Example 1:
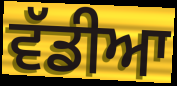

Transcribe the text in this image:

ਵੱਡੀਆ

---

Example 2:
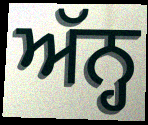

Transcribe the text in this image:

ਅੱਨ੍ਹ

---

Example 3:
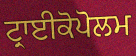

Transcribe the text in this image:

ਟ੍ਰਾਈਕੋਪੋਲਮ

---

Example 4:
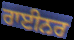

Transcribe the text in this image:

ਰਾਈਨਰ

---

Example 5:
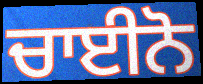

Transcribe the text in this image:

ਚਾਈਨੋ